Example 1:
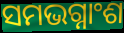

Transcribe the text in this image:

ସମଭଗ୍ନାଂଶ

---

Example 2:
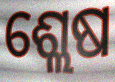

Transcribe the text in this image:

ଶ୍ଲେଷ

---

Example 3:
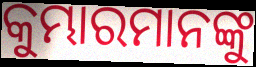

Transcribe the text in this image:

କୁମ୍ଭାରମାନଙ୍କୁ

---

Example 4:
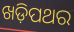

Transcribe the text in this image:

ଖଡ଼ିପଥର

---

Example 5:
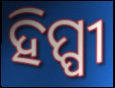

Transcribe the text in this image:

ହିପ୍ପୀ